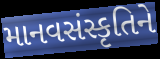
માનવસંસ્કૃતિને